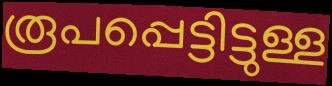
രൂപപ്പെട്ടിട്ടുള്ള